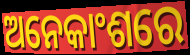
ଅନେକାଂଶରେ